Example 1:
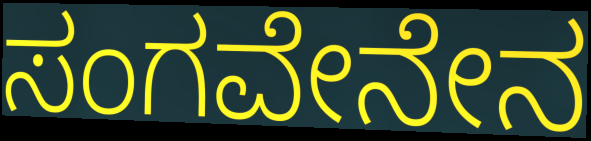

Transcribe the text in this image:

ಸಂಗವೇನೇನ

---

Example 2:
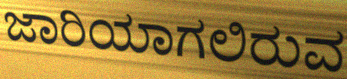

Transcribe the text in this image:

ಜಾರಿಯಾಗಲಿರುವ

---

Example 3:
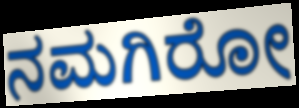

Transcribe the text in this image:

ನಮಗಿರೋ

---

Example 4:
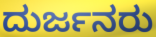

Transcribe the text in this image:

ದುರ್ಜನರು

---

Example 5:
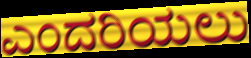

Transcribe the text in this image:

ಎಂದರಿಯಲು